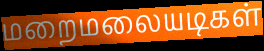
மறைமலையடிகள்